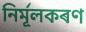
নিৰ্মূলকৰণ